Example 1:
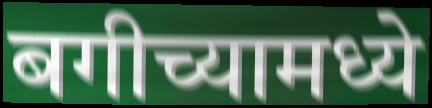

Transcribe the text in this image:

बगीच्यामध्ये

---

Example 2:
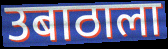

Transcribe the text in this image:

उबाठाला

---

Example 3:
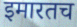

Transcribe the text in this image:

इमारतच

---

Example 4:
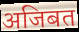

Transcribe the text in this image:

अजिबत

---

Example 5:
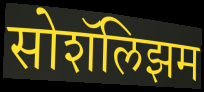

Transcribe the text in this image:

सोशॅलिझम